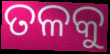
ତଳକୁ